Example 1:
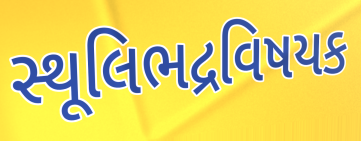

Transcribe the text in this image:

સ્થૂલિભદ્રવિષયક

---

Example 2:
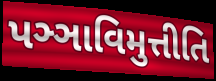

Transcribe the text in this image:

પઞ્ઞાવિમુત્તીતિ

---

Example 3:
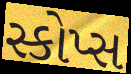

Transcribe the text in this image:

સ્કોપ્સ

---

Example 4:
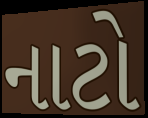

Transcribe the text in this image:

નાટો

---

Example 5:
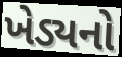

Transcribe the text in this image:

ખેડ્યનો